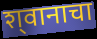
श्वानाचा